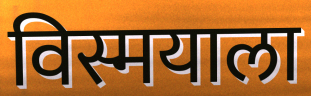
विस्मयाला